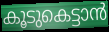
കൂടുകെട്ടാൻ